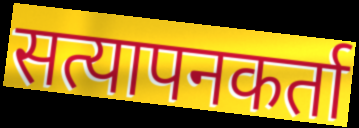
सत्यापनकर्ता